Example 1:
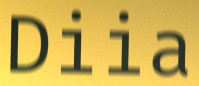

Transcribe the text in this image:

Diia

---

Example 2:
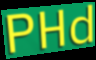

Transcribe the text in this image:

PHd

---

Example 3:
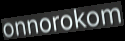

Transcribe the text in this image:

onnorokom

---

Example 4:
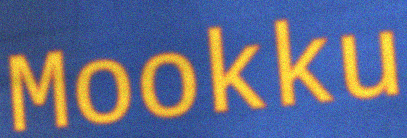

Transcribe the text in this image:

Mookku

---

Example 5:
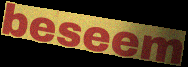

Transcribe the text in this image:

beseem